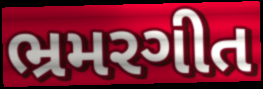
ભ્રમરગીત